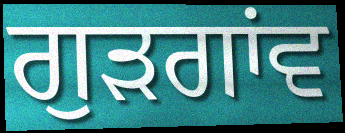
ਗੁੜਗਾਂਵ